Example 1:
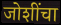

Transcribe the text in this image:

जोशींचा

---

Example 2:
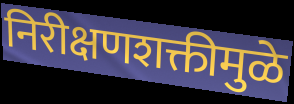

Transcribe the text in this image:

निरीक्षणशक्तीमुळे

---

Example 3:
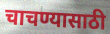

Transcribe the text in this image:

चाचण्यासाठी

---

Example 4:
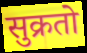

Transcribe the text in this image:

सुक्रतो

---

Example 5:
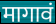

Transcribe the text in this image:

मागावं